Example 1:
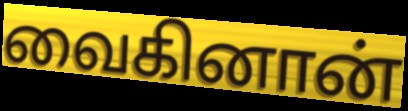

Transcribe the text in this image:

வைகினான்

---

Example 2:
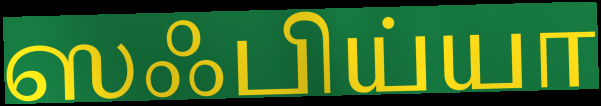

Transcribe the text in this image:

ஸஃபிய்யா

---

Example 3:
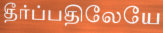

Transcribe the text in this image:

தீர்ப்பதிலேயே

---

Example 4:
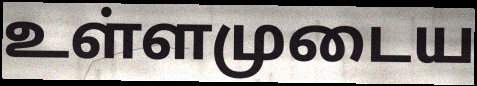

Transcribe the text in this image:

உள்ளமுடைய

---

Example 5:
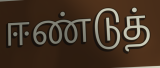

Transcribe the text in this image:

ஈண்டுத்